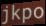
jkpo